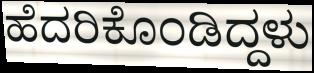
ಹೆದರಿಕೊಂಡಿದ್ದಳು